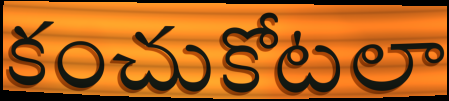
కంచుకోటలా